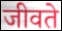
जीवते